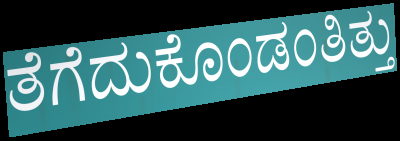
ತೆಗೆದುಕೊಂಡಂತಿತ್ತು